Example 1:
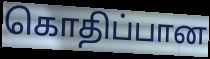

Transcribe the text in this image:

கொதிப்பான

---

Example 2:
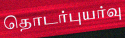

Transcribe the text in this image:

தொடர்புயர்வு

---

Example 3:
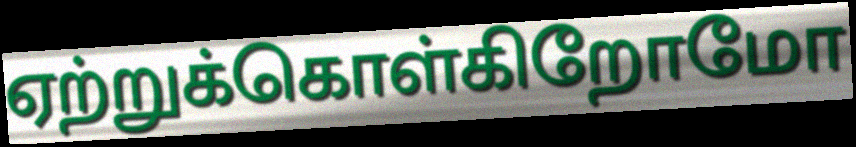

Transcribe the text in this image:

ஏற்றுக்கொள்கிறோமோ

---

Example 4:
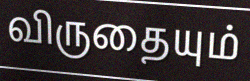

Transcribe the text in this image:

விருதையும்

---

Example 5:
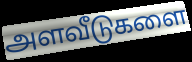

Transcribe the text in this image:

அளவீடுகளை